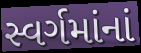
સ્વર્ગમાંનાં